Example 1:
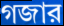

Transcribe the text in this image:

গজার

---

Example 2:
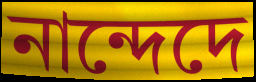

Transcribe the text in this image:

নান্দেদে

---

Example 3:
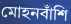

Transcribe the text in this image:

মোহনবাঁশি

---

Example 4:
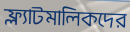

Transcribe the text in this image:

ফ্ল্যাটমালিকদের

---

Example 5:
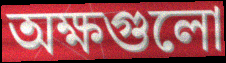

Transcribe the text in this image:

অক্ষগুলো